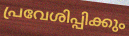
പ്രവേശിപ്പിക്കും